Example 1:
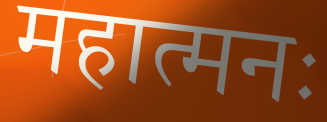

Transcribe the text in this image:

महात्मनः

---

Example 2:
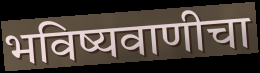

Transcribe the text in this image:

भविष्यवाणीचा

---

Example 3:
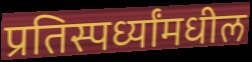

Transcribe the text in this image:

प्रतिस्पर्ध्यांमधील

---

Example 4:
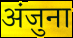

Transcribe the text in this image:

अंजुना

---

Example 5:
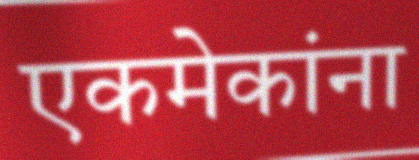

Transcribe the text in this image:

एकमेकांना